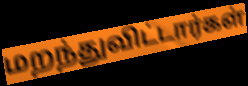
மறந்துவிட்டார்கள்